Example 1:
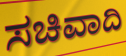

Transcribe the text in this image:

ಸಚಿವಾದಿ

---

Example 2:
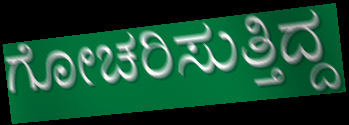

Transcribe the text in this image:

ಗೋಚರಿಸುತ್ತಿದ್ದ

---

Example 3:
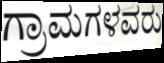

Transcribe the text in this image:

ಗ್ರಾಮಗಳವರು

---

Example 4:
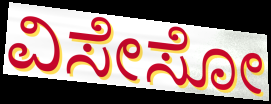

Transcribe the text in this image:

ವಿಸೇಸೋ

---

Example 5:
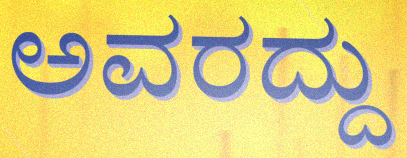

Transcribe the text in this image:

ಅವರದ್ದು